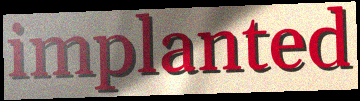
implanted